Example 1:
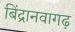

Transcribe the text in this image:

बिंद्रानवागढ़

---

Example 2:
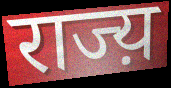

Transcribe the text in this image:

राज्य़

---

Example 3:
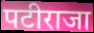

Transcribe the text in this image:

पटीराजा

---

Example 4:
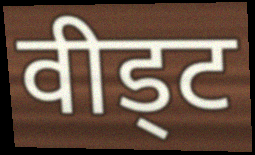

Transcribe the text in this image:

वीड्ट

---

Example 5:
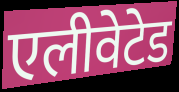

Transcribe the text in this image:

एलीवेटेड